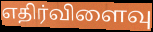
எதிர்விளைவு